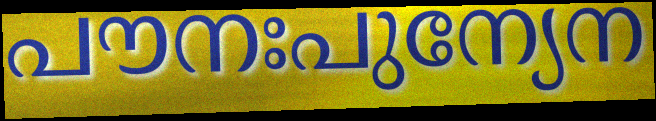
പൗനഃപുന്യേന